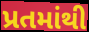
પ્રતમાંથી